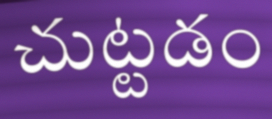
చుట్టడం